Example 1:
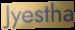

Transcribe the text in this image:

Jyestha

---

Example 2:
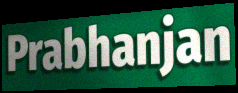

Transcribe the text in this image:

Prabhanjan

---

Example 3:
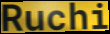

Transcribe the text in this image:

Ruchi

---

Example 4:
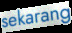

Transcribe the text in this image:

sekarang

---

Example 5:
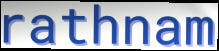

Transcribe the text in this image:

rathnam